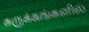
சுருக்கங்களில்